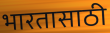
भारतासाठी